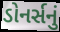
ડોનર્સનું